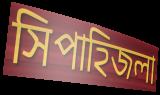
সিপাহিজলা